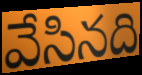
వేసినది